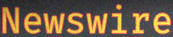
Newswire